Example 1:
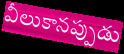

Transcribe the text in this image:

వీలుకానప్పుడు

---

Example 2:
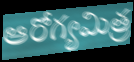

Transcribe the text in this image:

ఆరోగ్యమిత్ర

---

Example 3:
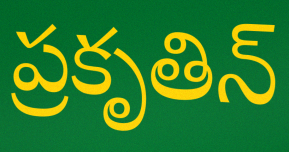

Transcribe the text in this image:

ప్రకృతిన్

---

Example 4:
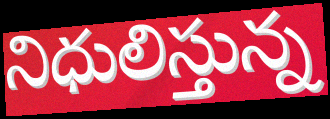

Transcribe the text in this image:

నిధులిస్తున్న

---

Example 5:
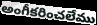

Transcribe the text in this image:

అంగీకరించలేము